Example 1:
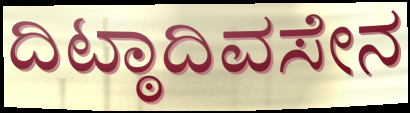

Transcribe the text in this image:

ದಿಟ್ಠಾದಿವಸೇನ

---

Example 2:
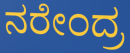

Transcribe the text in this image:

ನರೇಂದ್ರ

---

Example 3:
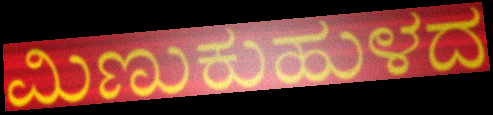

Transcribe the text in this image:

ಮಿಣುಕುಹುಳದ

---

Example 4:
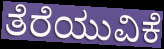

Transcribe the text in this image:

ತೆರೆಯುವಿಕೆ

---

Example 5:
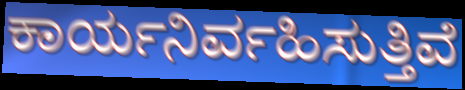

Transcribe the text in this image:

ಕಾರ್ಯನಿರ್ವಹಿಸುತ್ತಿವೆ